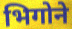
भिगोने